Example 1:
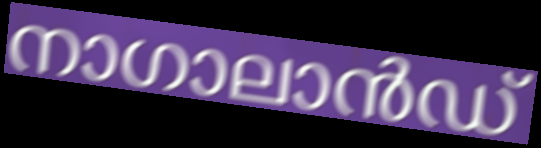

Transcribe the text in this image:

നാഗാലാൻഡ്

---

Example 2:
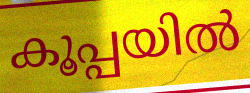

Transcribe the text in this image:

കൂപ്പയിൽ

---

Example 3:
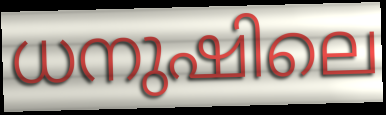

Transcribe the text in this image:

ധനുഷിലെ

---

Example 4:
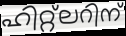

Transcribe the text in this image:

ഹിറ്റ്ലറിന്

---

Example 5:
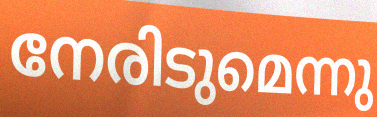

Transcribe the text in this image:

നേരിടുമെന്നു